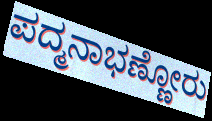
ಪದ್ಮನಾಭಣ್ಣೋರು